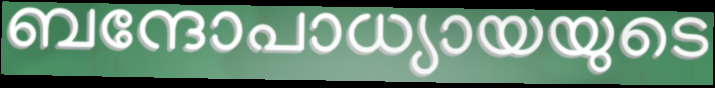
ബന്ദോപാധ്യായയുടെ